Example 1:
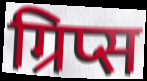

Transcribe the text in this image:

ग्रिप्स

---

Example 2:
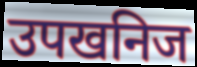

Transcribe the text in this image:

उपखनिज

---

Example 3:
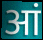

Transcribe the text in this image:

आं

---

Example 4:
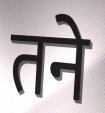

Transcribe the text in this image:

तने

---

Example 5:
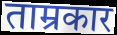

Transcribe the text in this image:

ताम्रकार